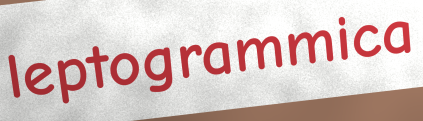
leptogrammica